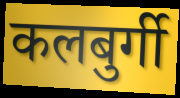
कलबुर्गी